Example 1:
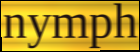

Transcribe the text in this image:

nymph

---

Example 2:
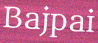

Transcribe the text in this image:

Bajpai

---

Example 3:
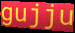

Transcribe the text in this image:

gujju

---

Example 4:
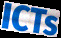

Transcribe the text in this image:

ICTs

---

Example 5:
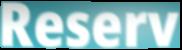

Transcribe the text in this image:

Reserv